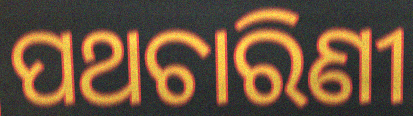
ପଥଚାରିଣୀ